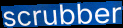
scrubber